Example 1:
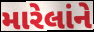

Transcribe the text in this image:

મારેલાંને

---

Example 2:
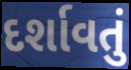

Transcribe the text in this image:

દર્શાવતું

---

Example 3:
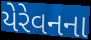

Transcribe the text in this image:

યેરેવનના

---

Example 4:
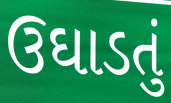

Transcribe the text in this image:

ઉઘાડતું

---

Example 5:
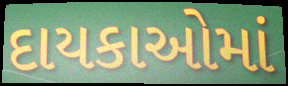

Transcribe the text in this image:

દાયકાઓમાં